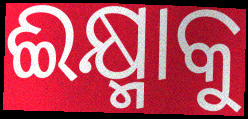
ଈକ୍ଷ୍ମାକୁ